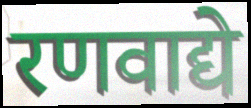
रणवाद्ये